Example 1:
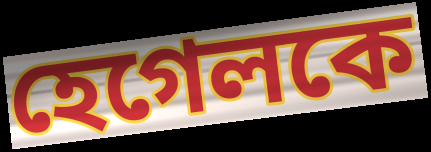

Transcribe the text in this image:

হেগেলকে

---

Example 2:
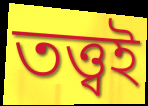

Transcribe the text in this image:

তত্ত্বই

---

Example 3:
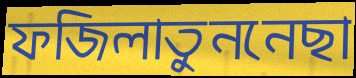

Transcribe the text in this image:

ফজিলাতুননেছা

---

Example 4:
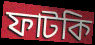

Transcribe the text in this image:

ফাটকি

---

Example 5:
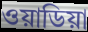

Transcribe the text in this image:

ওয়াডিয়া